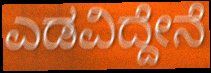
ಎಡವಿದ್ದೇನೆ